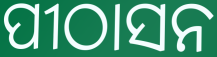
ପୀଠାସନ